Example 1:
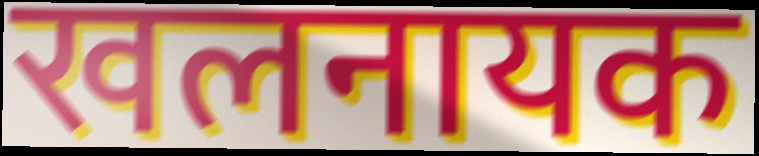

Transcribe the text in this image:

खलनायक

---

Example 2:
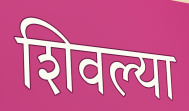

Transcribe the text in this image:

शिवल्या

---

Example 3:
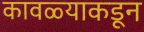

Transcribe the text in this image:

कावळ्याकडून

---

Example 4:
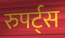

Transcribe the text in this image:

रुपर्ट्स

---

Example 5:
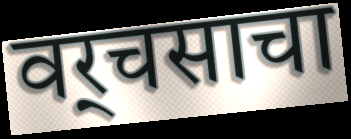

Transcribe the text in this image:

वर्चसाचा